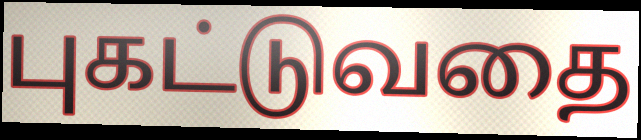
புகட்டுவதை